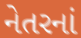
નેતરનાં